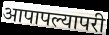
आपापल्यापरी